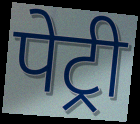
पेट्री